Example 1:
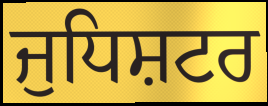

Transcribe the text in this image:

ਜੁਧਿਸ਼ਟਰ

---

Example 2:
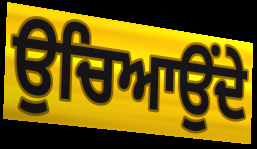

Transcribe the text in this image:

ਉਚਿਆਉਂਦੇ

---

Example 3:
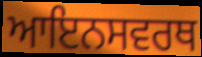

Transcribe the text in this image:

ਆਇਨਸਵਰਥ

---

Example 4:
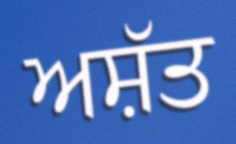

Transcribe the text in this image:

ਅਸ਼ੱਤ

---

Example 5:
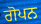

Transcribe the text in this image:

ਗੋਪਨ